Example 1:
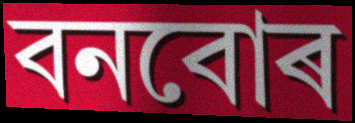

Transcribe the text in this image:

বনবোৰ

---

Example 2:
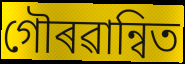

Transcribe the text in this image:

গৌৰৱান্বিত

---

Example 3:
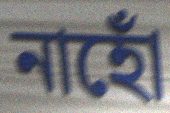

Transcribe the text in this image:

নাহোঁ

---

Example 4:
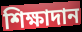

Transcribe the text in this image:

শিক্ষাদান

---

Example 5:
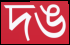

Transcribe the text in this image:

দঙ